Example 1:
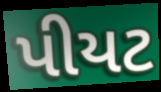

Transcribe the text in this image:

પીયટ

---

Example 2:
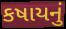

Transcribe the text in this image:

કષાયનું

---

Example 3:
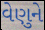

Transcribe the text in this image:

વેણુને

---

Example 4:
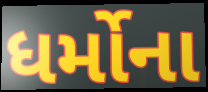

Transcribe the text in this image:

ધર્મોના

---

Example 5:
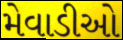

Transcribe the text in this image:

મેવાડીઓ